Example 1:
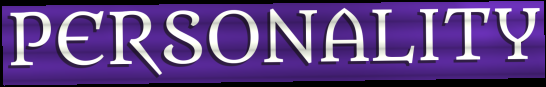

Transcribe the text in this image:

PERSONALITY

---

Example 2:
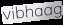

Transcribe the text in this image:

vibhaag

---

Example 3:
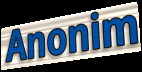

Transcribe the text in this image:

Anonim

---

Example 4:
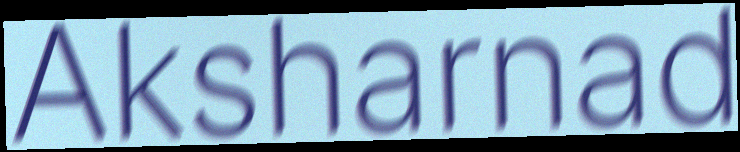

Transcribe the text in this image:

Aksharnad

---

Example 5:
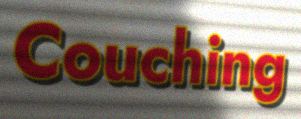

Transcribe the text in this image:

Couching